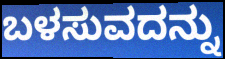
ಬಳಸುವದನ್ನು